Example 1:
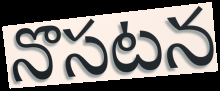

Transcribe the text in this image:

నొసటన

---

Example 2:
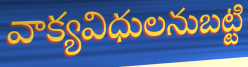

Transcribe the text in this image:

వాక్యవిధులనుబట్టి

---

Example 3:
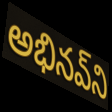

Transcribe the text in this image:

అభినవ్‌ని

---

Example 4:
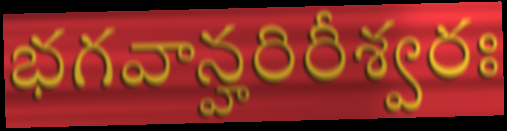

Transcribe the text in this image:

భగవాన్హరిరీశ్వరః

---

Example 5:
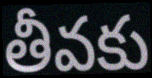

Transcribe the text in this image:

తీవకు